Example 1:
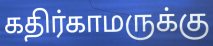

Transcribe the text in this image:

கதிர்காமருக்கு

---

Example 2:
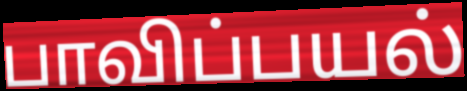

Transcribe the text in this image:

பாவிப்பயல்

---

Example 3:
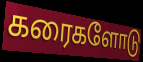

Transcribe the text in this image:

கரைகளோடு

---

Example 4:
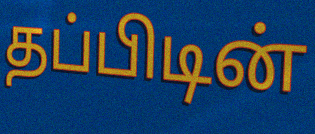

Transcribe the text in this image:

தப்பிடின்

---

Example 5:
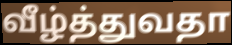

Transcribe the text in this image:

வீழ்த்துவதா